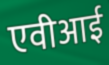
एवीआई